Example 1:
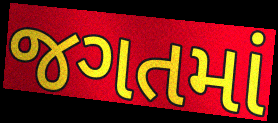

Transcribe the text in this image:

જગતમાં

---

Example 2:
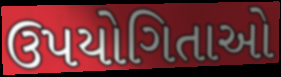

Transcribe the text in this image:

ઉપયોગિતાઓ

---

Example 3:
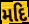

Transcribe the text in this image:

મદિ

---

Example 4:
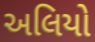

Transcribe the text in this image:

અલિયો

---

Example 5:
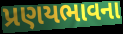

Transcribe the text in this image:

પ્રણયભાવના